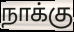
நாக்கு